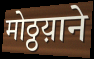
मोठ्ठय़ाने